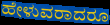
ಹೇಳುವರಾದರೂ